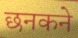
छनकने